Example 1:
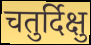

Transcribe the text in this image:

चतुर्दिक्षु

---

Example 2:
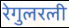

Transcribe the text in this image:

रेगुलरली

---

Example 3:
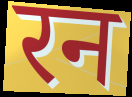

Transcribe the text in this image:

रन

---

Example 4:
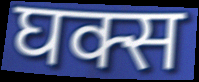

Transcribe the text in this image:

घक्स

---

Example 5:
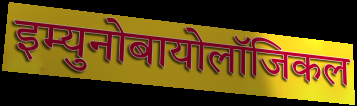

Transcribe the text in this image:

इम्युनोबायोलॉजिकल